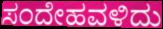
ಸಂದೇಹವಳಿದು